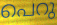
പെറു